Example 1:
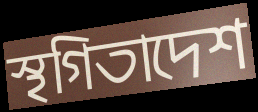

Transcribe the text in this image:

স্থগিতাদেশ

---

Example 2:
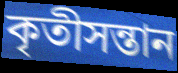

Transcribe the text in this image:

কৃতীসন্তান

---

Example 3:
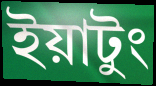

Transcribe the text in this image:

ইয়াটুং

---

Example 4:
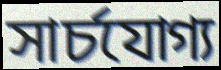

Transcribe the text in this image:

সার্চযোগ্য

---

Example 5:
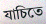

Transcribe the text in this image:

যাচিতে